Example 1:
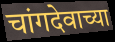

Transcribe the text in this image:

चांगदेवाच्या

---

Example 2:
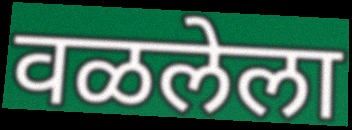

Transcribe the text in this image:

वळलेला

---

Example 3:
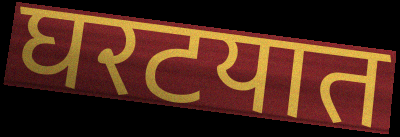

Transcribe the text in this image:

घरटयात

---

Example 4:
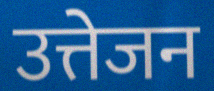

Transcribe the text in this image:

उत्तेजन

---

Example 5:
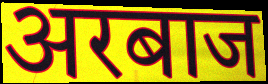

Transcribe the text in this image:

अरबाज